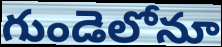
గుండెలోనూ